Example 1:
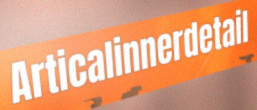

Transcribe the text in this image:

Articalinnerdetail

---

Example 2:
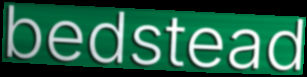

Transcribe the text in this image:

bedstead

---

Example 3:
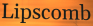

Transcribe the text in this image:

Lipscomb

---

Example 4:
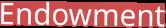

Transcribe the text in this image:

Endowment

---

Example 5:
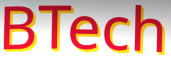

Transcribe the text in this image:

BTech